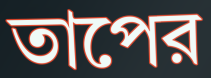
তাপের